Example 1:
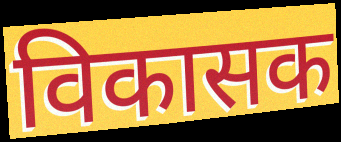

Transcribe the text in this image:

विकासक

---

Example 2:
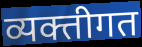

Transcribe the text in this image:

व्यक्तीगत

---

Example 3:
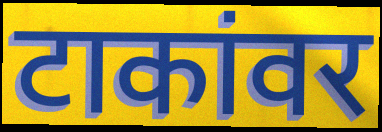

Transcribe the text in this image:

टाकांवर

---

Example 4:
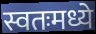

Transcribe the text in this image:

स्वतःमध्ये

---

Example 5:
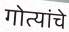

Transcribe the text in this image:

गोत्यांचे